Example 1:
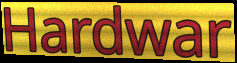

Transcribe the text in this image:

Hardwar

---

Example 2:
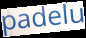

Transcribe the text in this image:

padelu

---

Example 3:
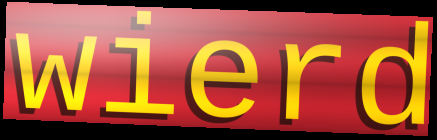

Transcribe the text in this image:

wierd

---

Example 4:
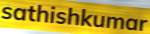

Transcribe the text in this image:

sathishkumar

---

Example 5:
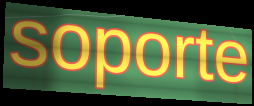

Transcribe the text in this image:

soporte